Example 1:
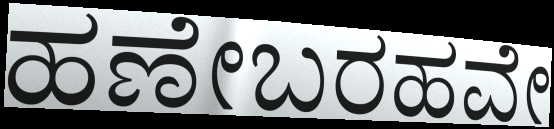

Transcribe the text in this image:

ಹಣೇಬರಹವೇ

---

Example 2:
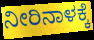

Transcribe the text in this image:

ನೀರಿನಾಳಕ್ಕೆ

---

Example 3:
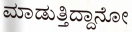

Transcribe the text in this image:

ಮಾಡುತ್ತಿದ್ದಾನೋ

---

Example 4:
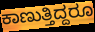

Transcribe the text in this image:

ಕಾಣುತ್ತಿದ್ದರೂ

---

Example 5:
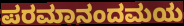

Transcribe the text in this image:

ಪರಮಾನಂದಮಯ